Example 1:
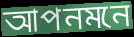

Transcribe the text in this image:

আপনমনে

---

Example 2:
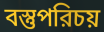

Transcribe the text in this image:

বস্তুপরিচয়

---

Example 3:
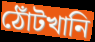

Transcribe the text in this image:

ঠোঁটখানি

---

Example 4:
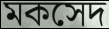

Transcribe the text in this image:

মকসেদ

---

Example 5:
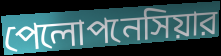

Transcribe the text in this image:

পেলোপনেসিয়ার